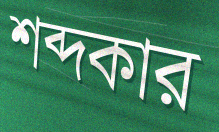
শব্দকার